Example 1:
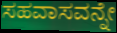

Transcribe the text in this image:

ಸಹವಾಸವನ್ನೇ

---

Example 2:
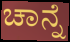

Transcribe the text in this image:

ಚಾನ್ನೆ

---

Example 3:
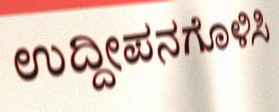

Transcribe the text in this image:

ಉದ್ದೀಪನಗೊಳಿಸಿ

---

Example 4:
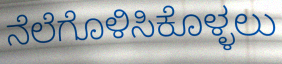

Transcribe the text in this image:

ನೆಲೆಗೊಳಿಸಿಕೊಳ್ಳಲು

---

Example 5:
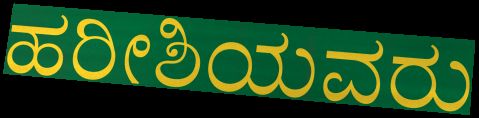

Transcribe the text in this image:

ಹರೀಶಿಯವರು